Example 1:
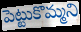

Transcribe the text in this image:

పెట్టుకొమ్మని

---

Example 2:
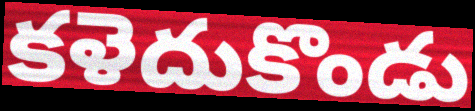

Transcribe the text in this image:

కళెదుకొండు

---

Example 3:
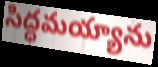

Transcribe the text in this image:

సిద్ధమయ్యాను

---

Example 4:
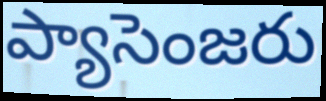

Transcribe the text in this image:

ప్యాసెంజరు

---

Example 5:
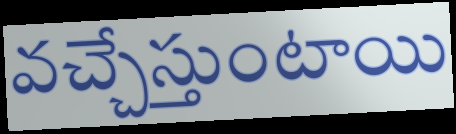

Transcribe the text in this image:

వచ్చేస్తుంటాయి